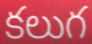
కలుగ